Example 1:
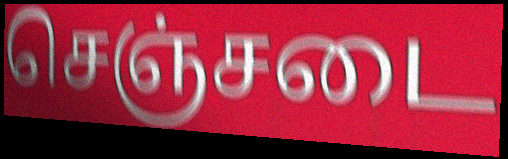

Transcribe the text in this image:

செஞ்சடை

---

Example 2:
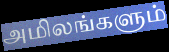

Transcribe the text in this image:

அமிலங்களும்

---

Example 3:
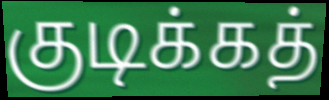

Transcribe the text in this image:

குடிக்கத்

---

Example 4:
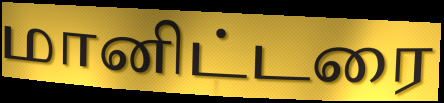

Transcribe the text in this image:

மானிட்டரை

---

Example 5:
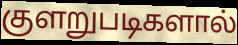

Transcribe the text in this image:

குளறுபடிகளால்